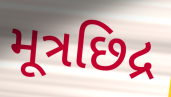
મૂત્રછિદ્ર